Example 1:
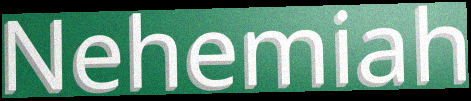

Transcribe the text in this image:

Nehemiah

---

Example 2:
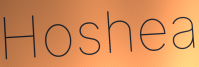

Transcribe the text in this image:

Hoshea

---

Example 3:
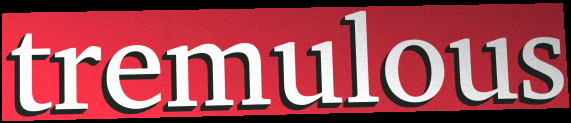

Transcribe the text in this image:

tremulous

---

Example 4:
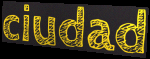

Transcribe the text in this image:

ciudad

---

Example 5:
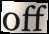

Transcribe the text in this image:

off